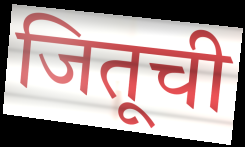
जितूची